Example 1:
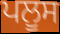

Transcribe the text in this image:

ਪਲੂਸ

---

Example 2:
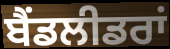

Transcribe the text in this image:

ਬੈਂਡਲੀਡਰਾਂ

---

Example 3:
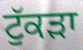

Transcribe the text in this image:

ਟੁੱਕੜਾ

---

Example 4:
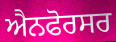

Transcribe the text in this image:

ਐਨਫੋਰਸਰ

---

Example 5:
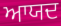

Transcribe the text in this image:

ਆਯਦ